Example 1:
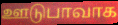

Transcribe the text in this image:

ஊடுபாவாக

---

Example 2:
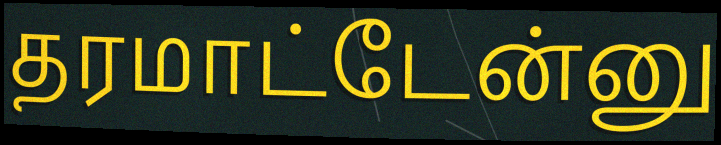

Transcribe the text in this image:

தரமாட்டேன்னு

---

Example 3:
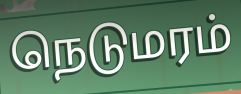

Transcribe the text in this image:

நெடுமரம்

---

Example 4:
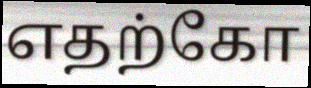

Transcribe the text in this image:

எதற்கோ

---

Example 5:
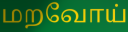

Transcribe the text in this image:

மறவோய்